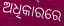
ଅଧିକାରରେ